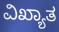
ವಿಖ್ಯಾತ